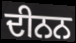
ਦੀਨਨ